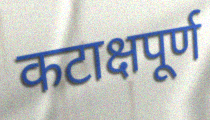
कटाक्षपूर्ण